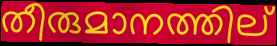
തീരുമാനത്തില്